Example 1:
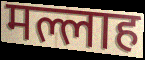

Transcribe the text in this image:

मल्‍लाह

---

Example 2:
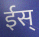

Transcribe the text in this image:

ईस्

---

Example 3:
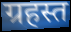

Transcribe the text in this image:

ग्रहस्त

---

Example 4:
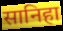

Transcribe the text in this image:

सानिहा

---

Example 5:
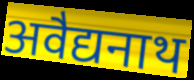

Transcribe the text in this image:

अवैद्यनाथ